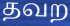
தவற